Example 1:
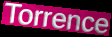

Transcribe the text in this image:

Torrence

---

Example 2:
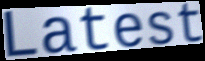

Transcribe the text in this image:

Latest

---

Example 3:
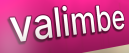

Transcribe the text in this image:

valimbe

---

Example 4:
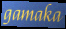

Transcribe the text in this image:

gamaka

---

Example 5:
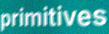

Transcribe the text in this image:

primitives